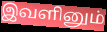
இவளினும்